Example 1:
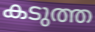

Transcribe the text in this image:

കടുത്ത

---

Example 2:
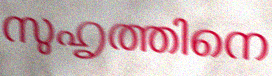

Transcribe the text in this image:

സുഹൃത്തിനെ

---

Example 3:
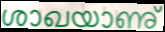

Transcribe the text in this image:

ശാഖയാണു്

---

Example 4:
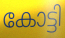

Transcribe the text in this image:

കോട്ടി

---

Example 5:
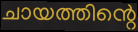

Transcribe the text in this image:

ചായത്തിന്റെ